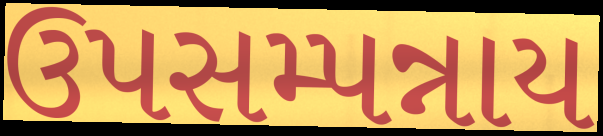
ઉપસમ્પન્નાય